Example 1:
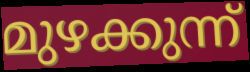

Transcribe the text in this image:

മുഴക്കുന്ന്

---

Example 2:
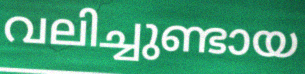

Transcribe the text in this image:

വലിച്ചുണ്ടായ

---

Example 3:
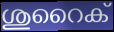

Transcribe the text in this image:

ശുറൈക്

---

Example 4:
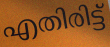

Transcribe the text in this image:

എതിരിട്ട്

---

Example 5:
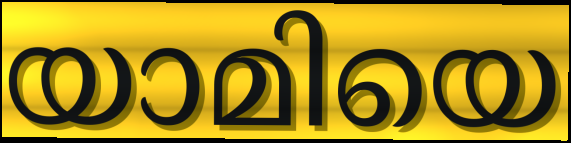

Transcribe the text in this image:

യാമിയെ